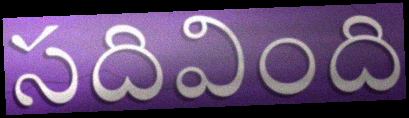
సదివింది